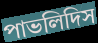
পাভলিদিস